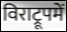
विराट्रूपमें